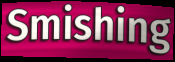
Smishing